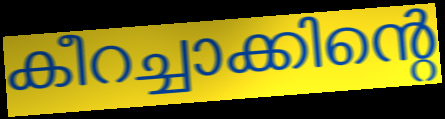
കീറച്ചാക്കിന്റെ